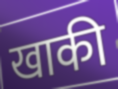
खाकी